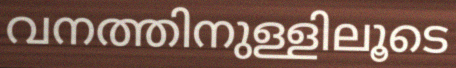
വനത്തിനുള്ളിലൂടെ